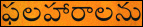
ఫలహారాలను